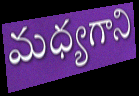
మధ్యగాని